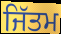
ਜਿੱਤਮ